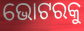
ଭୋଟରକୁ